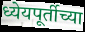
ध्येयपूर्तीच्या